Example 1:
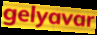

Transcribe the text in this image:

gelyavar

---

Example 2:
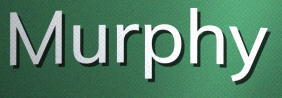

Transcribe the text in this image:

Murphy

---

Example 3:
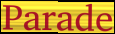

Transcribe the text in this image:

Parade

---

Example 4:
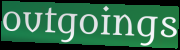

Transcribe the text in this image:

outgoings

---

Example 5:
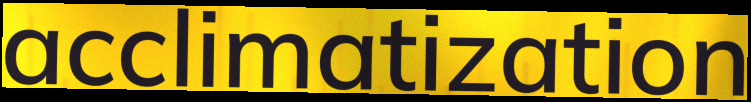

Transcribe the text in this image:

acclimatization